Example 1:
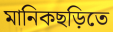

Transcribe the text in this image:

মানিকছড়িতে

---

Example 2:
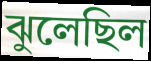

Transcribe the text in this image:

ঝুলেছিল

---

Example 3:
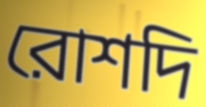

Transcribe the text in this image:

রোশদি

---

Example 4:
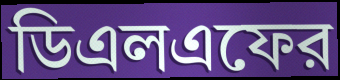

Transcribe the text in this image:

ডিএলএফের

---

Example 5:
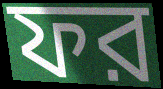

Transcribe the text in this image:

ফর